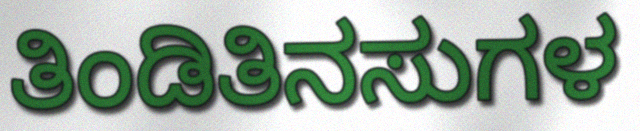
ತಿಂಡಿತಿನಸುಗಳ